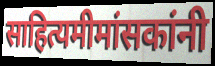
साहित्यमीमांसकांनी